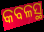
କବଳସ୍ଥ